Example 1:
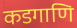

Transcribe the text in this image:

कडगाणि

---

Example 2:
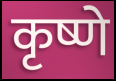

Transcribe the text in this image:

कृष्णे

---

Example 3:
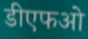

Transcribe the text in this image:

डीएफओ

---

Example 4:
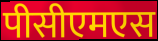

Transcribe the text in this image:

पीसीएमएस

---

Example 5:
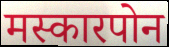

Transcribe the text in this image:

मस्कारपोन